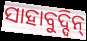
ସାହାବୁଦ୍ଦିନ୍